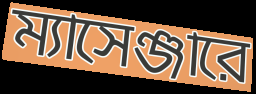
ম্যাসেঞ্জারে